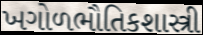
ખગોળભૌતિકશાસ્ત્રી